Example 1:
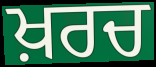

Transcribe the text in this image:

ਖ਼ਰਚ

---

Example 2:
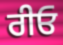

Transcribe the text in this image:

ਰੀਓ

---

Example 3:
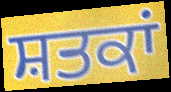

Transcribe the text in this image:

ਸ਼ਤਕਾਂ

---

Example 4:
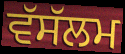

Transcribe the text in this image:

ਵੱਸੱਲਮ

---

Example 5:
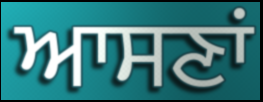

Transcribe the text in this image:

ਆਸਣਾਂ